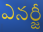
ఎనర్జీ